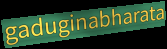
gaduginabharata